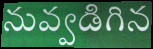
నువ్వడిగిన